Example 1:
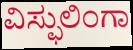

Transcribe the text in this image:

ವಿಸ್ಫುಲಿಂಗಾ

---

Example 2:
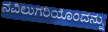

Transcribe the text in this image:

ನವಿಲುಗರಿಯೊಂದನ್ನು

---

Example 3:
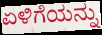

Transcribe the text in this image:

ಏಳಿಗೆಯನ್ನು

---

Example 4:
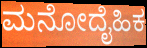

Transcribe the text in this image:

ಮನೋದೈಹಿಕ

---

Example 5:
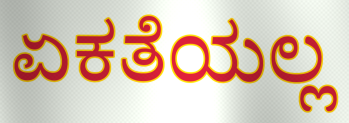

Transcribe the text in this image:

ಏಕತೆಯಲ್ಲ